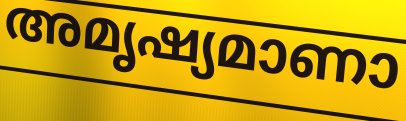
അമൃഷ്യമാണാ